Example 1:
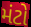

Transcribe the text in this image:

મંટો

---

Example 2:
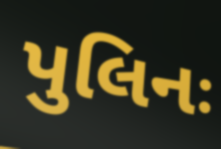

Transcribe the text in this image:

પુલિનઃ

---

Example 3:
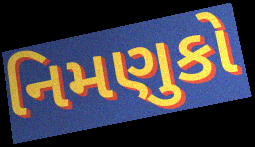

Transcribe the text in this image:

નિમણુકો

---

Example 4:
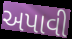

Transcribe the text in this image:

અપાવી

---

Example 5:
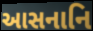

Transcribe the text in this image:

આસનાનિ